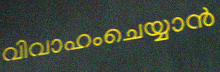
വിവാഹംചെയ്യാൻ